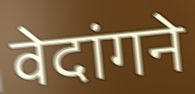
वेदांगने